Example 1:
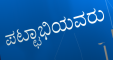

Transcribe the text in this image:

ಪಟ್ಟಾಭಿಯವರು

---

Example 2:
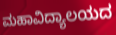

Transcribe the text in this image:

ಮಹಾವಿದ್ಯಾಲಯದ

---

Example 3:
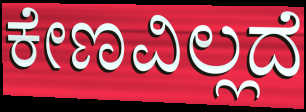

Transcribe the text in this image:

ಕೇಣವಿಲ್ಲದೆ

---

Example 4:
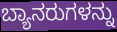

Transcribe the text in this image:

ಬ್ಯಾನರುಗಳನ್ನು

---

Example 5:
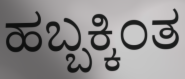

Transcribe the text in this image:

ಹಬ್ಬಕ್ಕಿಂತ